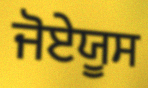
ਜੋਏਯੂਸ